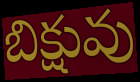
బిక్షువు